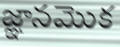
జ్ఞానమొక